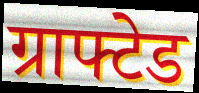
ग्राफ्टेड